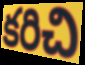
కరిచి